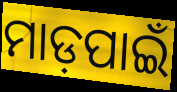
ମାଡ଼ପାଇଁ